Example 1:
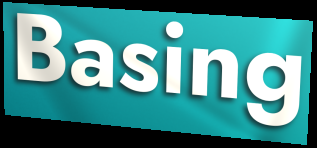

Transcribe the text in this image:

Basing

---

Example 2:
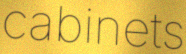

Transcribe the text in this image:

cabinets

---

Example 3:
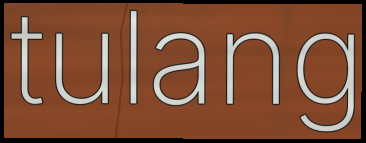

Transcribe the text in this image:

tulang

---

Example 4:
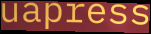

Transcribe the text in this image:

uapress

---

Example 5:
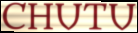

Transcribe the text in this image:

CHUTU